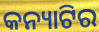
କନ୍ୟାଟିର